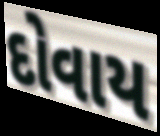
દોવાય